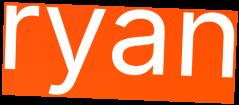
ryan